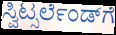
ಸ್ವಿಟ್ಸರ್ಲೆಂಡ್‌ಗೆ